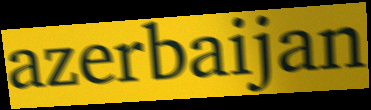
azerbaijan